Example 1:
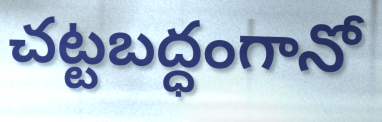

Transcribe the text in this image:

చట్టబద్ధంగానో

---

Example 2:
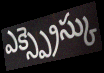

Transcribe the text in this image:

ఎక్స్ప్రెస్కు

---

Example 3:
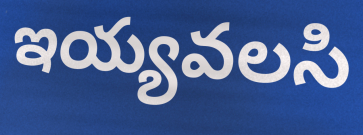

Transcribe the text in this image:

ఇయ్యవలసి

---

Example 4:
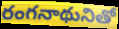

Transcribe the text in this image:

రంగనాథునితో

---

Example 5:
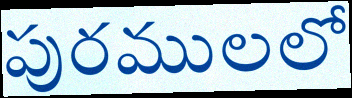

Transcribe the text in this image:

పురములలో